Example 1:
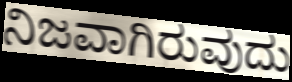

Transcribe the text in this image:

ನಿಜವಾಗಿರುವುದು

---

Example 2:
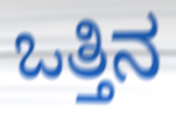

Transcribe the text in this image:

ಒತ್ತಿನ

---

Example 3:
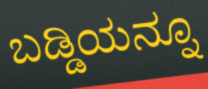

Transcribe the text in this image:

ಬಡ್ಡಿಯನ್ನೂ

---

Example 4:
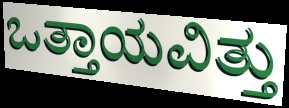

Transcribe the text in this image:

ಒತ್ತಾಯವಿತ್ತು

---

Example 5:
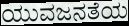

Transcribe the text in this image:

ಯುವಜನತೆಯ